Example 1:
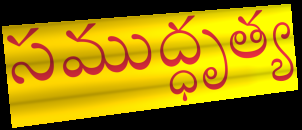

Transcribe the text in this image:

సముద్ధృత్య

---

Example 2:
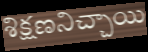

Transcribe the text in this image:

శిక్షణనిచ్చాయి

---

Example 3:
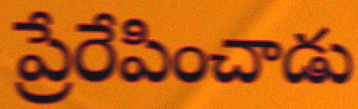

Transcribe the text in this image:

ప్రేరేపించాడు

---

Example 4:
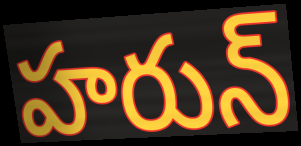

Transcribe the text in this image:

హరున్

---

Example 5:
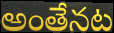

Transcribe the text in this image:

అంతేనట